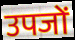
उपजों